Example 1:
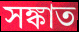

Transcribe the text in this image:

সঙ্কাত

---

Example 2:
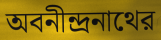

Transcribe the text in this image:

অবনীন্দ্রনাথের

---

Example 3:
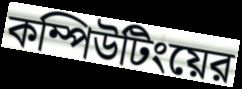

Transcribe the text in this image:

কম্পিউটিংয়ের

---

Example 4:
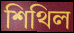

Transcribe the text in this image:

শিথিল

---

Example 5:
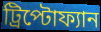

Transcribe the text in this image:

ট্রিপ্টোফ্যান